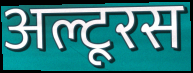
अल्टूरस